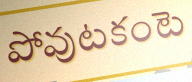
పోవుటకంటె